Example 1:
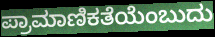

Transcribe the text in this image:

ಪ್ರಾಮಾಣಿಕತೆಯೆಂಬುದು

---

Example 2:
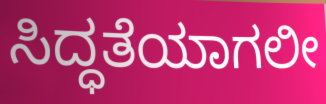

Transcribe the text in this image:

ಸಿದ್ಧತೆಯಾಗಲೀ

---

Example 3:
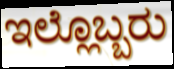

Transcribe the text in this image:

ಇಲ್ಲೊಬ್ಬರು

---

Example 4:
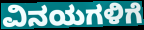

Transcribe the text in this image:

ವಿನಯಗಳಿಗೆ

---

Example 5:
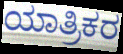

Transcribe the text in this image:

ಯಾತ್ರಿಕರ